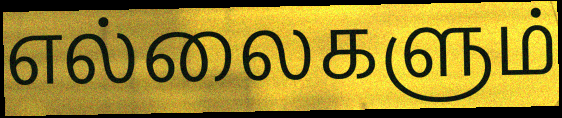
எல்லைகளும்